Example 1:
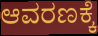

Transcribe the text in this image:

ಆವರಣಕ್ಕೆ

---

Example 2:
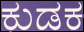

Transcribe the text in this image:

ಕುಡಕ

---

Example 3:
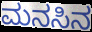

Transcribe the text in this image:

ಮನಸಿನ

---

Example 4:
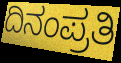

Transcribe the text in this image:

ದಿನಂಪ್ರತಿ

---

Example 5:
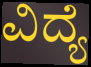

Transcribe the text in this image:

ವಿದ್ಯೆ